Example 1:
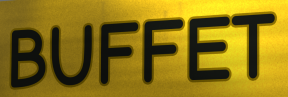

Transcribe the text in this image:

BUFFET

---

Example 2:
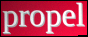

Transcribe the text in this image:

propel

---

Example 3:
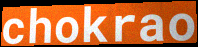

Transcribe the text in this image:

chokrao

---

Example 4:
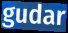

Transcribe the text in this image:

gudar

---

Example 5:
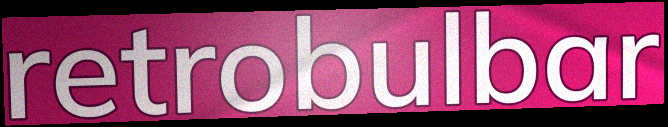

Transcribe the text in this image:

retrobulbar